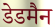
डेडमैन